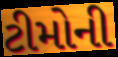
ટીમોની